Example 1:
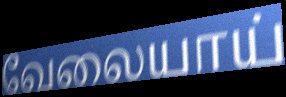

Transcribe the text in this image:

வேலையாய்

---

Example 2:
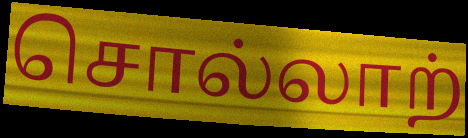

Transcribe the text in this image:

சொல்லாற்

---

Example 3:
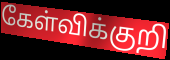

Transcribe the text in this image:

கேள்விக்குறி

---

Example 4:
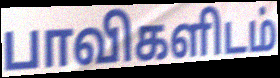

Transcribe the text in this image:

பாவிகளிடம்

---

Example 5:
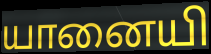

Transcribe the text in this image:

யானையி